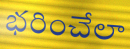
భరించేలా